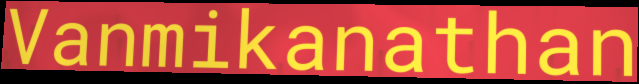
Vanmikanathan